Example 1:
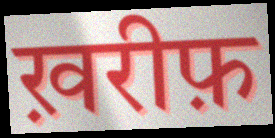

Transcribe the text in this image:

ख़रीफ़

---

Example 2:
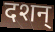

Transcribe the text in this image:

दशन्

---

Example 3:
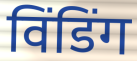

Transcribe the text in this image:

विंडिंग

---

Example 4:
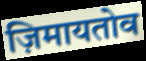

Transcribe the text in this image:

ज़िमायतोव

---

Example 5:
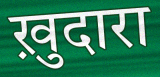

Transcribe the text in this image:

ख़ुदारा